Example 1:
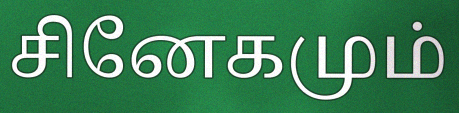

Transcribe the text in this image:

சினேகமும்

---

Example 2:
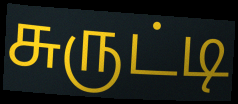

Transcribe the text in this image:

சுருட்டி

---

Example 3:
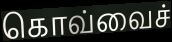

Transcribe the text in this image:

கொவ்வைச்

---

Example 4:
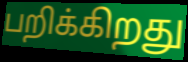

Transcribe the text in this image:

பறிக்கிறது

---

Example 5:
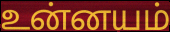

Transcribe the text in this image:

உன்னயம்